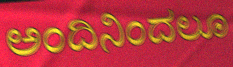
ಅಂದಿನಿಂದಲೂ